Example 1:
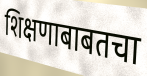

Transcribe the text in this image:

शिक्षणाबाबतचा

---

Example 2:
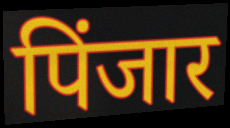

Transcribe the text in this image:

पिंजार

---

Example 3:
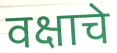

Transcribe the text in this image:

वक्षाचे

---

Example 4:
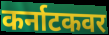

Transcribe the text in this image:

कर्नाटकवर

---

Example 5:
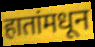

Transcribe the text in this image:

हातांमधून